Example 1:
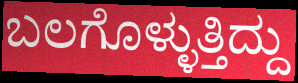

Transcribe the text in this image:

ಬಲಗೊಳ್ಳುತ್ತಿದ್ದು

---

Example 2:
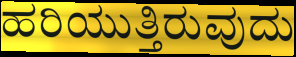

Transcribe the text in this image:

ಹರಿಯುತ್ತಿರುವುದು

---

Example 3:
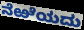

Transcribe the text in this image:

ನೆಱೆಯದು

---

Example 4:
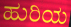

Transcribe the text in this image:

ಹುರಿಯ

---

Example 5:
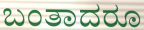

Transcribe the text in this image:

ಬಂತಾದರೂ